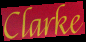
Clarke